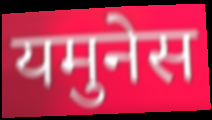
यमुनेस